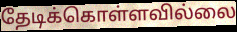
தேடிக்கொள்ளவில்லை